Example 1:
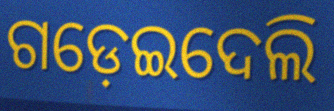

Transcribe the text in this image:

ଗଡ଼େଇଦେଲି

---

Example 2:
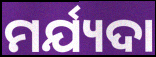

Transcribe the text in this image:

ମର୍ଯ୍ୟଦା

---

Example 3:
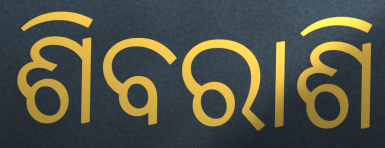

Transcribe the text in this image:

ଶିବରାଶି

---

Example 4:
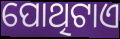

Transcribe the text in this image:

ପୋଥିଟାଏ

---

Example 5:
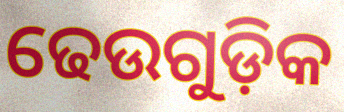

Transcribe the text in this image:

ଢେଉଗୁଡ଼ିକ